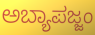
ಅಬ್ಯಾಪಜ್ಜಂ